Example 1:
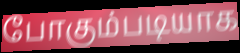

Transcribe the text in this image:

போகும்படியாக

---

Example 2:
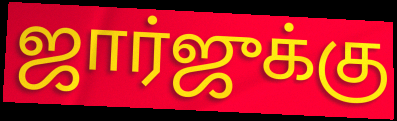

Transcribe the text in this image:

ஜார்ஜுக்கு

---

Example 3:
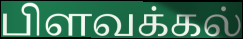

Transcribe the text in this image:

பிளவக்கல்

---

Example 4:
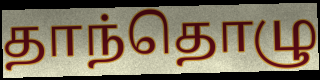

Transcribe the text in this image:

தாந்தொழு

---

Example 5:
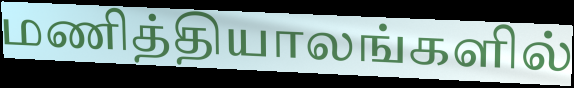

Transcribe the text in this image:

மணித்தியாலங்களில்